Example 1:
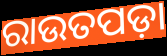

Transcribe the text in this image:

ରାଉତପଡ଼ା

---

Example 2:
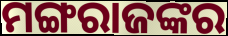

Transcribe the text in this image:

ମଙ୍ଗରାଜଙ୍କର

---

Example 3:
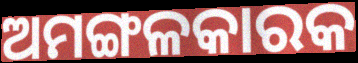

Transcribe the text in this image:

ଅମଙ୍ଗଳକାରକ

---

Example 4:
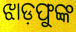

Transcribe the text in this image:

ଝାଡ଼ଫୁଙ୍କ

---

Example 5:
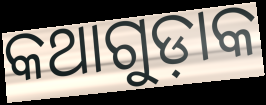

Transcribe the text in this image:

କଥାଗୁଡ଼ାକ